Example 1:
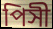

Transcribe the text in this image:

পিসী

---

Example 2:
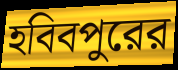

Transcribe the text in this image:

হবিবপুরের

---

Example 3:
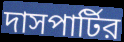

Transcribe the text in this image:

দাসপার্টির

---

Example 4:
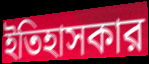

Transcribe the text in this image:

ইতিহাসকার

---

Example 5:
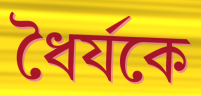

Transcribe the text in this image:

ধৈর্যকে